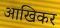
आखिकर